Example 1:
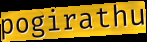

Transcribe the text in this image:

pogirathu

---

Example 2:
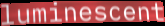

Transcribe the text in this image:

luminescent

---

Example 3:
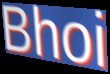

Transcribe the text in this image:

Bhoi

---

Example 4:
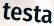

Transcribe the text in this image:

testa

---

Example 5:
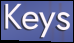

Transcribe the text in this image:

Keys